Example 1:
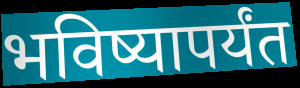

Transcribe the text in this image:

भविष्यापर्यंत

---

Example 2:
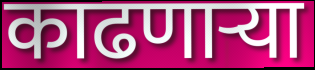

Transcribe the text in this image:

काढणार्‍या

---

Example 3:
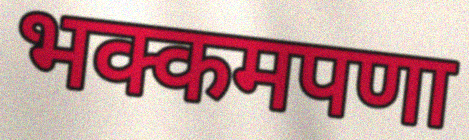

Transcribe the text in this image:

भक्कमपणा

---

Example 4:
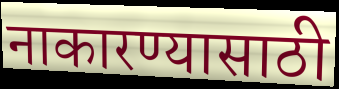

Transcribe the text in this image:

नाकारण्यासाठी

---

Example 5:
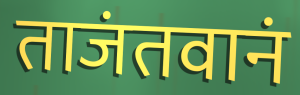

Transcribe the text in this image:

ताजंतवानं